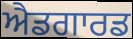
ਐਡਗਾਰਡ